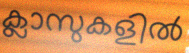
ക്ലാസുകളിൽ